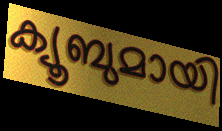
ക്യൂബുമായി